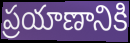
ప్రయాణానికి